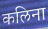
कलिना